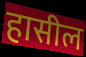
हासील